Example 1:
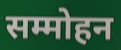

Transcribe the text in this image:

सम्मोहन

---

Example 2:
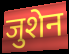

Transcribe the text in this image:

जुशेन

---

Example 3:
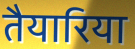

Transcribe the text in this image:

तैयारिया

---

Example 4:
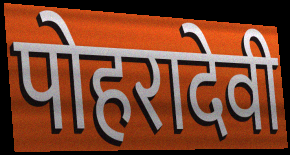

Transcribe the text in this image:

पोहरादेवी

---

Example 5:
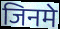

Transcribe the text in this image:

जिनमे